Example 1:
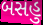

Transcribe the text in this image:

બસહુ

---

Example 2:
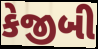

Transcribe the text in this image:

કેજીબી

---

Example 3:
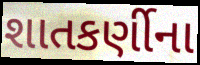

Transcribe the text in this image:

શાતકર્ણીના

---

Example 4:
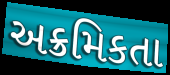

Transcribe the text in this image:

અક્રમિકતા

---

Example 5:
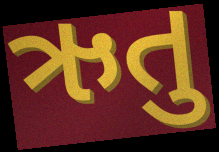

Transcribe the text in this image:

ઋતુ